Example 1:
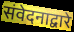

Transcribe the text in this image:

संवेदनाद्वारे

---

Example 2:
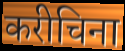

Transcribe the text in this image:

करीचिना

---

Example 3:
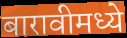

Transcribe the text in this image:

बारावीमध्ये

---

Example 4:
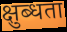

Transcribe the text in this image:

क्षुब्धता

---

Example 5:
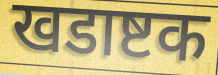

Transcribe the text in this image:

खडाष्टक